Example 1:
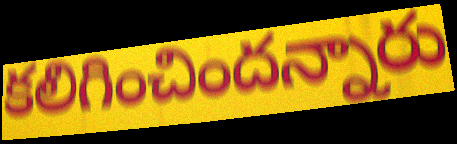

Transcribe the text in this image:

కలిగించిందన్నారు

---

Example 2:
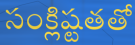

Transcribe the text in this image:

సంక్లిష్టతతో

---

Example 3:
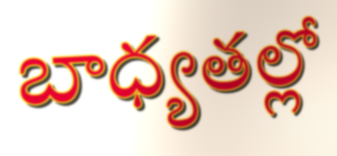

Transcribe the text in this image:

బాధ్యతల్లో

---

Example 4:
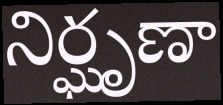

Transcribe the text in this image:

నిర్ఘృణా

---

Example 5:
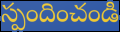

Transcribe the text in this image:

స్పందించండి